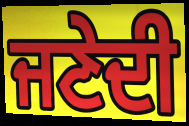
ਜਣੇਦੀ